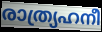
രാത്ര്യഹനീ